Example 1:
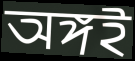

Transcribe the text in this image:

অঙ্গই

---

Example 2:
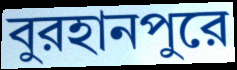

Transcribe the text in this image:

বুরহানপুরে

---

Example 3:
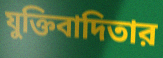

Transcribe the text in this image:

যুক্তিবাদিতার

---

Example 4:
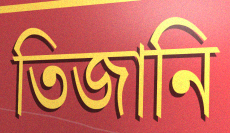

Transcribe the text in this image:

তিজানি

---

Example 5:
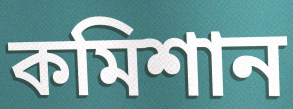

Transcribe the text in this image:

কমিশান